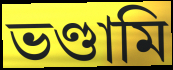
ভণ্ডামি